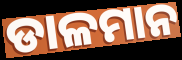
ଡାଳମାନ